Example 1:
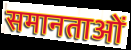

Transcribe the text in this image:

समानताओं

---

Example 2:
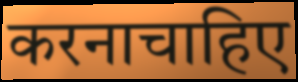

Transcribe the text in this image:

करनाचाहिए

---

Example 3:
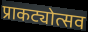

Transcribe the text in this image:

प्राकट्योत्सव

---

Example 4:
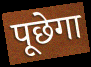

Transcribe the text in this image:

पूछेगा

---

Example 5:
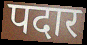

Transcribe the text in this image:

पदार